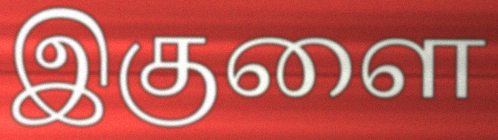
இகுளை